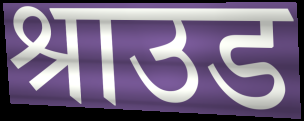
श्राउड